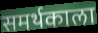
समर्थकाला